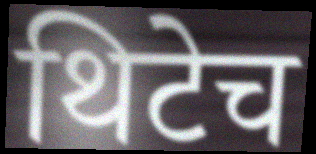
थिटेच